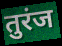
तुरंज